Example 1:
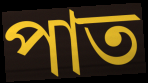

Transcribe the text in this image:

পাত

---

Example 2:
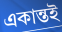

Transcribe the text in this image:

একান্তই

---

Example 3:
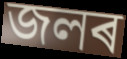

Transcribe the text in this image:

জলৰ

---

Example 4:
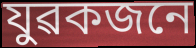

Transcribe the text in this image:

যুৱকজনে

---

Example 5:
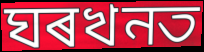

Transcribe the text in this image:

ঘৰখনত